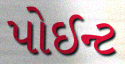
પોઈન્ટ